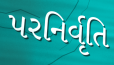
પરનિર્વૃતિ